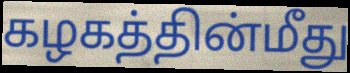
கழகத்தின்மீது